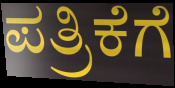
ಪತ್ರಿಕೆಗೆ